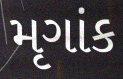
મૃગાંક